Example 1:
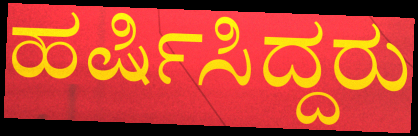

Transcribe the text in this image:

ಹರ್ಷಿಸಿದ್ದರು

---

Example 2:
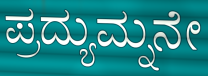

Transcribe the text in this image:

ಪ್ರದ್ಯುಮ್ನನೇ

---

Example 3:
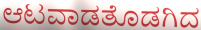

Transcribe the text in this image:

ಆಟವಾಡತೊಡಗಿದ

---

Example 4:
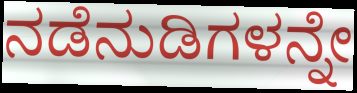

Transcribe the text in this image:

ನಡೆನುಡಿಗಳನ್ನೇ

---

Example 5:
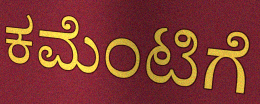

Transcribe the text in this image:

ಕಮೆಂಟಿಗೆ